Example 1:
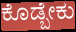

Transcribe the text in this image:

ಕೊಡ್ಬೇಕು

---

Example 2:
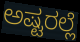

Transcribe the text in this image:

ಅಷ್ಟರಲ್ಲೆ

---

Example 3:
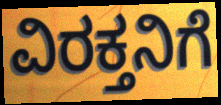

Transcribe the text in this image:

ವಿರಕ್ತನಿಗೆ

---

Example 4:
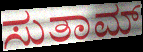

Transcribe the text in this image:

ಸುತಾಮ್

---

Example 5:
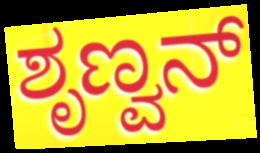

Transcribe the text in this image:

ಶೃಣ್ವನ್